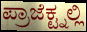
ಪ್ರಾಜೆಕ್ಟ್ನಲ್ಲಿ